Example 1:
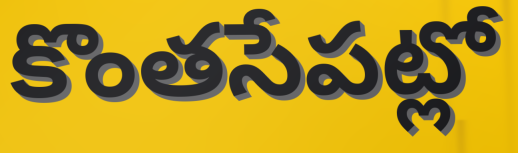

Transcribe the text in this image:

కొంతసేపట్లో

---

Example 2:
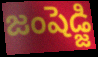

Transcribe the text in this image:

జంషెడ్జి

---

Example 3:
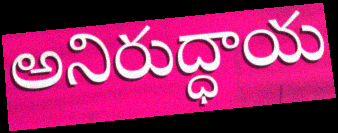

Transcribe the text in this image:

అనిరుద్ధాయ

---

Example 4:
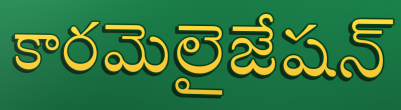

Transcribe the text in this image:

కారమెలైజేషన్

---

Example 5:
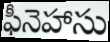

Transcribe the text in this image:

ఫీనెహాసు